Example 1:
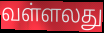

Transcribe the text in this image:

வள்ளலது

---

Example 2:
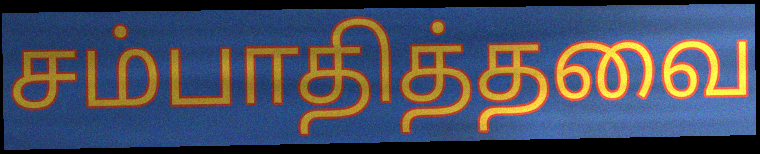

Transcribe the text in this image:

சம்பாதித்தவை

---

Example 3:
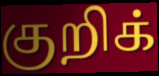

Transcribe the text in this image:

குறிக்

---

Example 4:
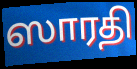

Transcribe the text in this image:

ஸாரதி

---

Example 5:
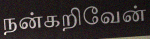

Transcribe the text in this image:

நன்கறிவேன்